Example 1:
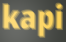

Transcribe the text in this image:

kapi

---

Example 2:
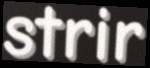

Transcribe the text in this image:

strir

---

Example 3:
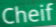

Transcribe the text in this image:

Cheif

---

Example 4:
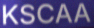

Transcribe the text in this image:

KSCAA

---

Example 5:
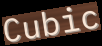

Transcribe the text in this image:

Cubic